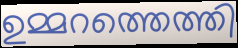
ഉമ്മറത്തെത്തി